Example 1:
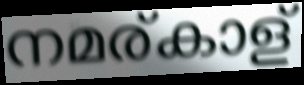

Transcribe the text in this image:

നമര്കാള്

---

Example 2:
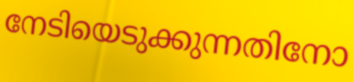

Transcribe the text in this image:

നേടിയെടുക്കുന്നതിനോ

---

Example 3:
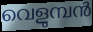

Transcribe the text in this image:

വെളുമ്പൻ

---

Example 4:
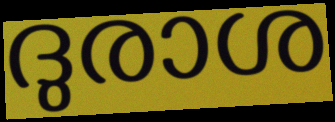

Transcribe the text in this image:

ദുരാശ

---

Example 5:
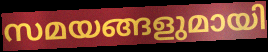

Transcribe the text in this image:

സമയങ്ങളുമായി